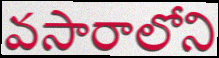
వసారాలోని